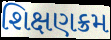
શિક્ષણક્રમ